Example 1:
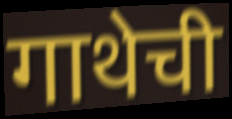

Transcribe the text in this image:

गाथेची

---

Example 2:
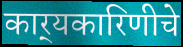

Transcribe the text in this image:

कार्यकारिणीचे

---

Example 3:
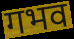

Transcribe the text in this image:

गभव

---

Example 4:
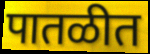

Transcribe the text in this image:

पातळीत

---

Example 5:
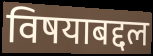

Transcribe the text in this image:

विषयाबद्दल